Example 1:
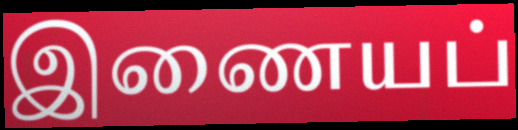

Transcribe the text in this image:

இணையப்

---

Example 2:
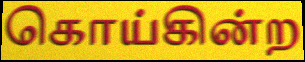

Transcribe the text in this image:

கொய்கின்ற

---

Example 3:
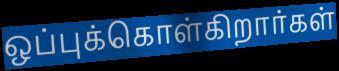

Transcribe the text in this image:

ஒப்புக்கொள்கிறார்கள்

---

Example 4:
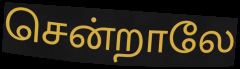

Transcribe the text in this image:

சென்றாலே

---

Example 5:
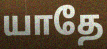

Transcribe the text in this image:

யாதே